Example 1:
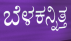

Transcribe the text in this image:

ಬೆಳಕನ್ನಿತ್ತ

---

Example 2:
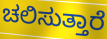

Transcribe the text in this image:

ಚಲಿಸುತ್ತಾರೆ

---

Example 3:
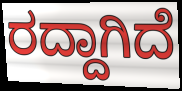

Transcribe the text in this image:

ರದ್ದಾಗಿದೆ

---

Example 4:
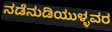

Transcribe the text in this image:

ನಡೆನುಡಿಯುಳ್ಳವರ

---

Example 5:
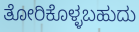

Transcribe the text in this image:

ತೋರಿಕೊಳ್ಳಬಹುದು